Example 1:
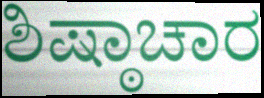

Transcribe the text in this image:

ಶಿಷ್ಠಾಚಾರ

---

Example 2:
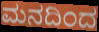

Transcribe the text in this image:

ಮನದಿಂದ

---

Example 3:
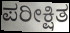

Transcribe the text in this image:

ಪರೀಕ್ಷಿತ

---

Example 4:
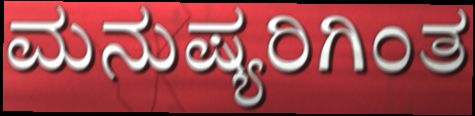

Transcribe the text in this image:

ಮನುಷ್ಯರಿಗಿಂತ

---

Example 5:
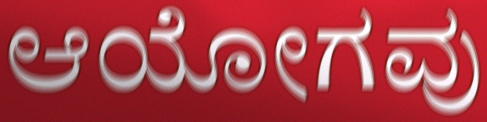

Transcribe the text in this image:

ಆಯೋಗವು